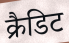
क्रैडिट